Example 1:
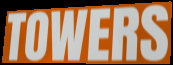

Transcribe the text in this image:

TOWERS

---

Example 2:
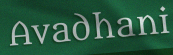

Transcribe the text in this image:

Avadhani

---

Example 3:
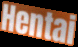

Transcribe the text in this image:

Hentai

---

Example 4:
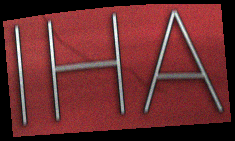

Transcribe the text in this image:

IHA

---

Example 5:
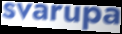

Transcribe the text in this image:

svarupa